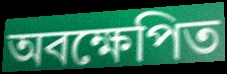
অবক্ষেপিত